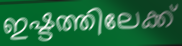
ഇഷ്ടത്തിലേക്ക്